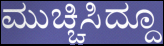
ಮುಚ್ಚಿಸಿದ್ದೂ